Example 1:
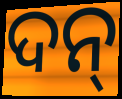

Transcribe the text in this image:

ଦନ୍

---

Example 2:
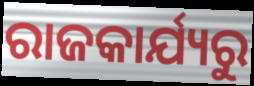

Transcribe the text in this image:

ରାଜକାର୍ଯ୍ୟରୁ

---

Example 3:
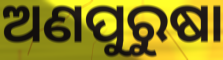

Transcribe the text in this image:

ଅଣପୁରୁଷା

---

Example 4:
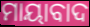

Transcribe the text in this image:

ମାୟାବାଦ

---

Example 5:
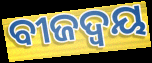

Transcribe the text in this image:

ବୀଜଦ୍ଵୟ